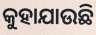
କୁହାଯାଉଛି